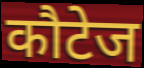
कौटेज